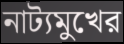
নাট্যমুখের